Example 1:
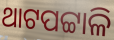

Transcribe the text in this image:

ଥାଟପଟ୍ଟାଳି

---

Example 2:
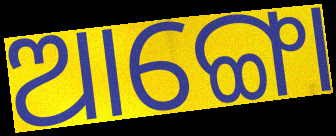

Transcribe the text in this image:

ଆଙ୍ଗୋ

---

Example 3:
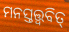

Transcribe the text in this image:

ମନସ୍ତତ୍ତ୍ଵବିତ୍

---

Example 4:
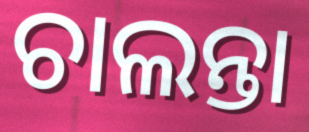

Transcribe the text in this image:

ଚାଲନ୍ତା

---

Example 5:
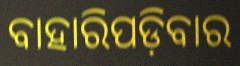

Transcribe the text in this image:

ବାହାରିପଡ଼ିବାର